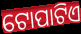
ଟୋପାଟିଏ